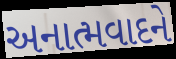
અનાત્મવાદને